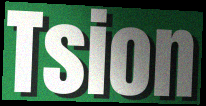
Tsion